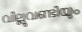
വില്ലുവണ്ടിയും